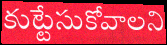
కుట్టేసుకోవాలని